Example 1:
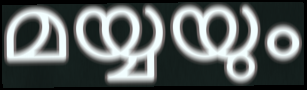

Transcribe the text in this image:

മയ്യയും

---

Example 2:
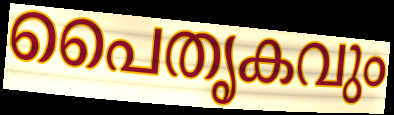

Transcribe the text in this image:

പൈതൃകവും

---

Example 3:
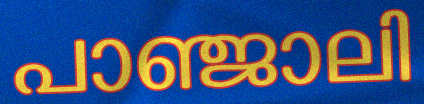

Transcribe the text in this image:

പാഞ്ജാലി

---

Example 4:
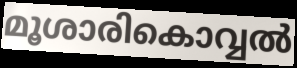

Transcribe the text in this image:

മൂശാരികൊവ്വൽ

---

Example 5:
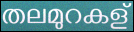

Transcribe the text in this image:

തലമുറകള്